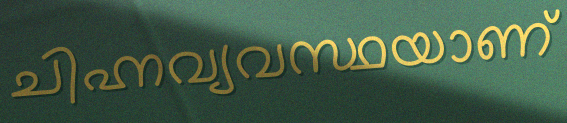
ചിഹ്നവ്യവസ്ഥയാണ്